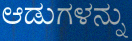
ಆಡುಗಳನ್ನು